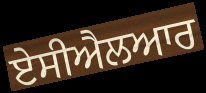
ਏਸੀਐਲਆਰ